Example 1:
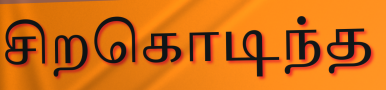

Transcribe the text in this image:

சிறகொடிந்த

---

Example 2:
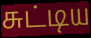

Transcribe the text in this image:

சுட்டிய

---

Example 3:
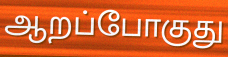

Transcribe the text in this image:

ஆறப்போகுது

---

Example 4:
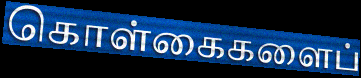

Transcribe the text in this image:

கொள்கைகளைப்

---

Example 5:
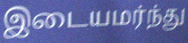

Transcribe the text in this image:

இடையமர்ந்து